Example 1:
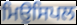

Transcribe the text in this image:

ਮਿਉਸਿਪਲ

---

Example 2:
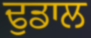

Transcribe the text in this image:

ਢੁਡਾਲ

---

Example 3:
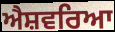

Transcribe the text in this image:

ਐਸ਼ਵਰਿਆ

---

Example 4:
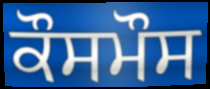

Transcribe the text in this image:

ਕੌਸਮੌਸ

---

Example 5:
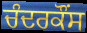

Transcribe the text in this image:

ਚੰਦਰਕੌਂਸ